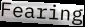
Fearing